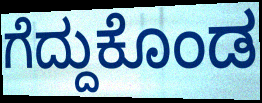
ಗೆದ್ದುಕೊಂಡ